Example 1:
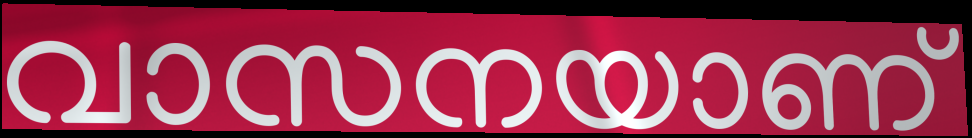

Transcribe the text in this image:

വാസനയാണ്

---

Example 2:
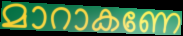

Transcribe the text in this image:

മാറാകണേ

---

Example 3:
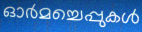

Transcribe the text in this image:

ഓർമച്ചെപ്പുകൾ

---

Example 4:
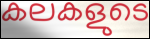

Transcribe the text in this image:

കലകളുടെ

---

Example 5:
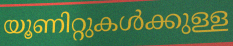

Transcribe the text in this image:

യൂണിറ്റുകൾക്കുള്ള